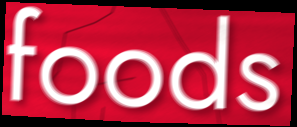
foods